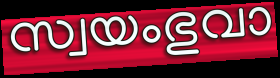
സ്വയംഭുവാ